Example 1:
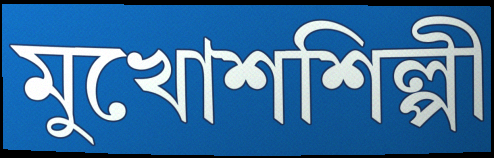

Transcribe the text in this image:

মুখোশশিল্পী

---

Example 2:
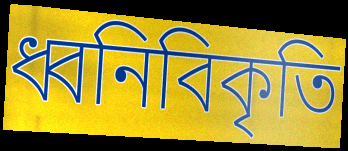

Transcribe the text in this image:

ধ্বনিবিকৃতি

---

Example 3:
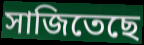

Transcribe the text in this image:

সাজিতেছে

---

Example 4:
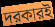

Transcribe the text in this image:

দরকারই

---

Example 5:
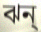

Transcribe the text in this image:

ঝন্